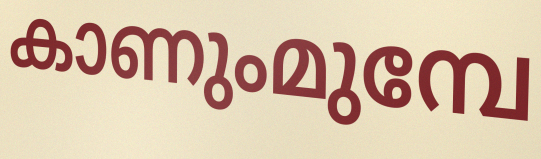
കാണുംമുമ്പേ